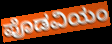
ಪೊಡವಿಯಂ